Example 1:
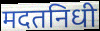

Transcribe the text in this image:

मदतनिधी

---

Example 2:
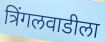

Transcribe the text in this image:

त्रिंगलवाडीला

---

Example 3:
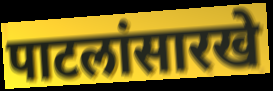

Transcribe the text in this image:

पाटलांसारखे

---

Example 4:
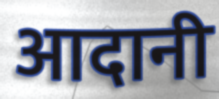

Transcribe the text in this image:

आदानी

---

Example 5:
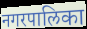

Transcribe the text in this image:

नगरपालिका